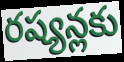
రష్యన్లకు